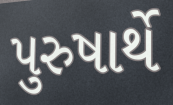
પુરુષાર્થે